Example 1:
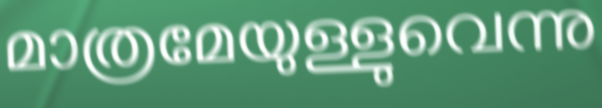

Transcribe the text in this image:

മാത്രമേയുള്ളുവെന്നു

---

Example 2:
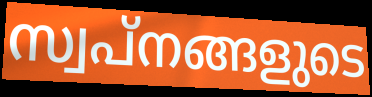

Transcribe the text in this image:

സ്വപ്നങ്ങളുടെ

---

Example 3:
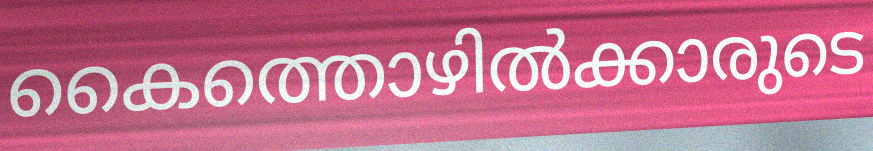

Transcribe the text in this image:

കൈത്തൊഴിൽക്കാരുടെ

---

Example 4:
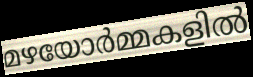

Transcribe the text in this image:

മഴയോർമ്മകളിൽ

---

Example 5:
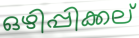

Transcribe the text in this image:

ഒഴിപ്പിക്കല്